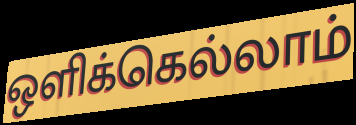
ஒளிக்கெல்லாம்